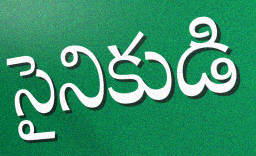
సైనికుడి